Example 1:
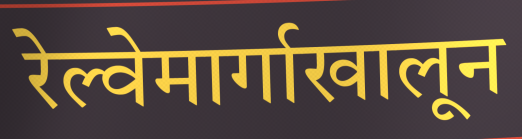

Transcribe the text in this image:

रेल्वेमार्गाखालून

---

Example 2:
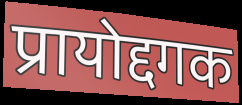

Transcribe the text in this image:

प्रायोद्दगक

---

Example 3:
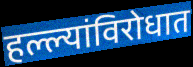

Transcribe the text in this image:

हल्ल्यांविरोधात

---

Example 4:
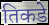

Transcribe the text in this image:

तिकडे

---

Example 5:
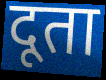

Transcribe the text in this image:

दूता